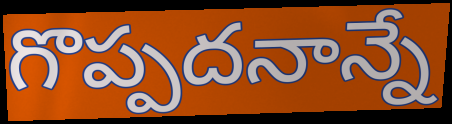
గొప్పదనాన్నే